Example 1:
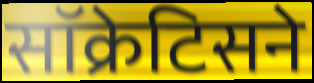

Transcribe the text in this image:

सॉक्रेटिसने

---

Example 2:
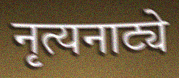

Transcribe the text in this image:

नृत्यनाट्ये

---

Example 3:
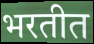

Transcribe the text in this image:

भरतीत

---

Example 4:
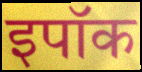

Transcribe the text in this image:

इपॉक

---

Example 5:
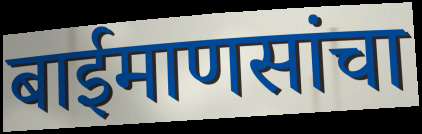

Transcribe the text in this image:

बाईमाणसांचा